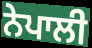
ਨੇਪਾਲੀ